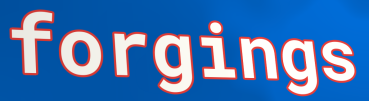
forgings